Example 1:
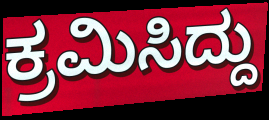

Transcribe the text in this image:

ಕ್ರಮಿಸಿದ್ದು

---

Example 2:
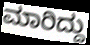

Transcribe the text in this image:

ಮಾರಿದ್ದು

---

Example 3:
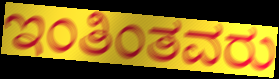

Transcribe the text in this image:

ಇಂತಿಂತವರು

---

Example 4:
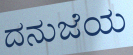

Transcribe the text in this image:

ದನುಜೆಯ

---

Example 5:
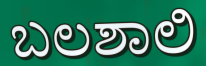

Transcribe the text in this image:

ಬಲಶಾಲಿ